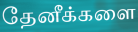
தேனீக்களை